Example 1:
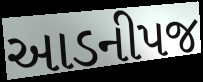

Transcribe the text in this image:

આડનીપજ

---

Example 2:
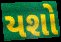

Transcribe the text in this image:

યશો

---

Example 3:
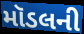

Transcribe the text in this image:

મૉડલની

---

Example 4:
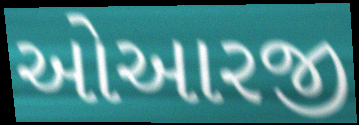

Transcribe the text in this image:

ઓઆરજી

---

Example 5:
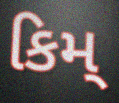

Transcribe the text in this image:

કિમ્